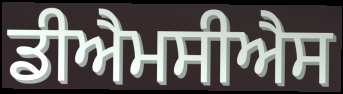
ਡੀਐਮਸੀਐਸ